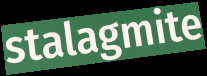
stalagmite